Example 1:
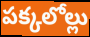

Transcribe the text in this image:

పక్కలోల్లు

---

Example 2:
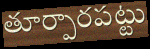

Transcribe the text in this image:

తూర్పారపట్టు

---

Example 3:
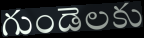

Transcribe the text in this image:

గుండెలకు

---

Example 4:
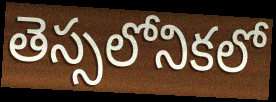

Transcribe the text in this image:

తెస్సలోనికలో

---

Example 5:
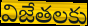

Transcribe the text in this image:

విజేతలకు